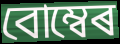
বোম্বেৰ